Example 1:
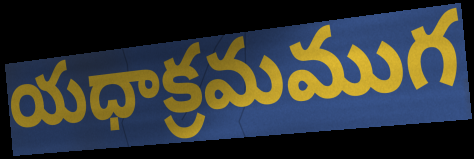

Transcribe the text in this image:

యధాక్రమముగ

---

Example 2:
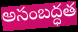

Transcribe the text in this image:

అసంబద్ధత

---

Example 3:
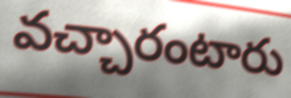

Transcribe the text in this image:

వచ్చారంటారు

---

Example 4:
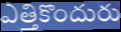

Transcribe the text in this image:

ఎత్తికొందురు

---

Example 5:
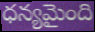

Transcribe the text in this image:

ధన్యమైంది